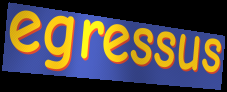
egressus